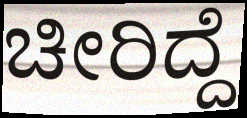
ಚೀರಿದ್ದೆ